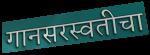
गानसरस्वतीचा